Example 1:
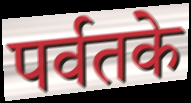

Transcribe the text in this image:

पर्वतके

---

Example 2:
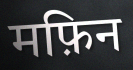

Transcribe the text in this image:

मफ़िन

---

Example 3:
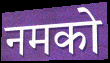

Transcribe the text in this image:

नमको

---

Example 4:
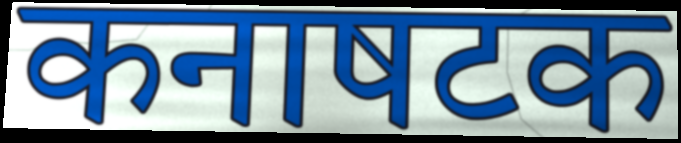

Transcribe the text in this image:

कनाषटक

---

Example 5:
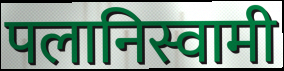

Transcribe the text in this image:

पलानिस्वामी